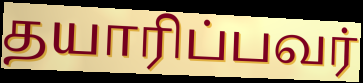
தயாரிப்பவர்